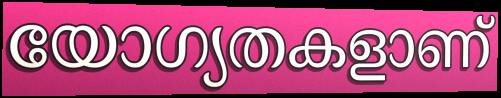
യോഗ്യതകളാണ്